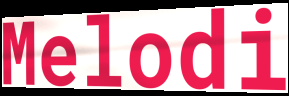
Melodi